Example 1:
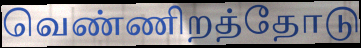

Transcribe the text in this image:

வெண்ணிறத்தோடு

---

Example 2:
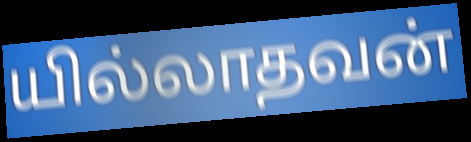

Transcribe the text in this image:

யில்லாதவன்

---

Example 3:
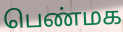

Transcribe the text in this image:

பெண்மக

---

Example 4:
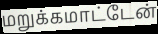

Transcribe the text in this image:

மறுக்கமாட்டேன்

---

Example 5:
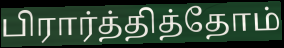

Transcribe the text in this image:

பிரார்த்தித்தோம்